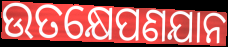
ଉତକ୍ଷେପଣଯାନ